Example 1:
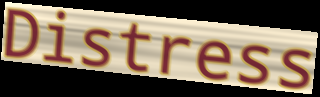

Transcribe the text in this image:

Distress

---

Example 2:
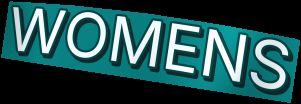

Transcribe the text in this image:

WOMENS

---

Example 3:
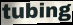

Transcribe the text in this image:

tubing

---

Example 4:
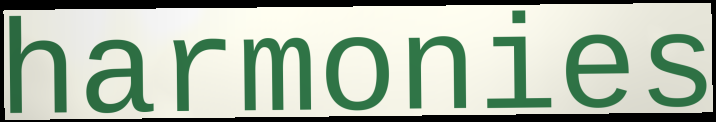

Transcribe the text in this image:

harmonies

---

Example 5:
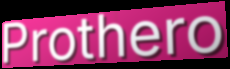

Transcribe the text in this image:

Prothero